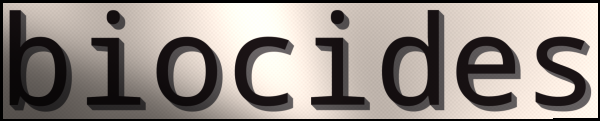
biocides